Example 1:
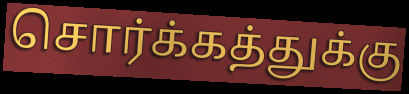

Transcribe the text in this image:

சொர்க்கத்துக்கு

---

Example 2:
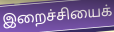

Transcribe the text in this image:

இறைச்சியைக்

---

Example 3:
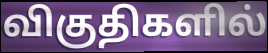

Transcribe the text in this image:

விகுதிகளில்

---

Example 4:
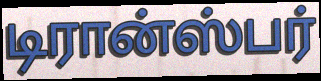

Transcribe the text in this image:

டிரான்ஸ்பர்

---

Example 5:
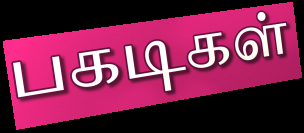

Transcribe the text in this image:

பகடிகள்